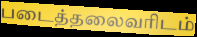
படைத்தலைவரிடம்